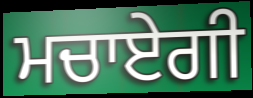
ਮਚਾਏਗੀ